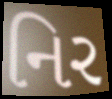
નિર